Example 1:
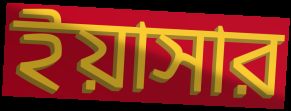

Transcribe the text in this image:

ইয়াসার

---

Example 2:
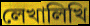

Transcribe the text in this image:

লেখালিখি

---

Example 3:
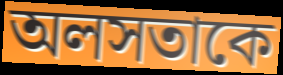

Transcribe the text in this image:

অলসতাকে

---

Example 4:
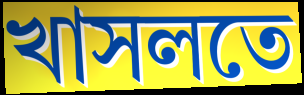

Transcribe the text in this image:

খাসলতে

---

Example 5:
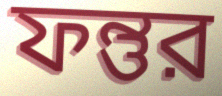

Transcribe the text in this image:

ফন্তুর